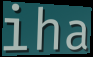
iha